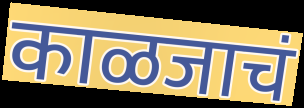
काळजाचं